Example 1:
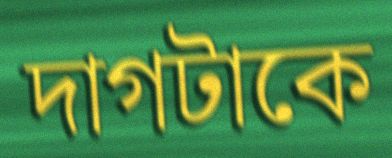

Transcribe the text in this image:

দাগটাকে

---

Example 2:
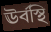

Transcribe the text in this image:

ঊর্বস্থি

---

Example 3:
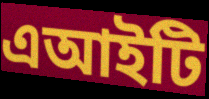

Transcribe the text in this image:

এআইটি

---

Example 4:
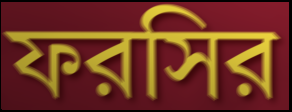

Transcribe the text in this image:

ফরসির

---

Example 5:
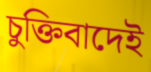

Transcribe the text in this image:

চুক্তিবাদেই